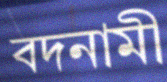
বদনামী